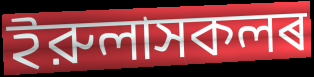
ইৰুলাসকলৰ